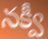
నక్వీ